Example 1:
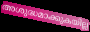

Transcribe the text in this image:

അശുദ്ധമാക്കുകയില്ല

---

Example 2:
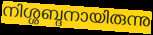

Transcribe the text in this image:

നിശ്ശബ്ദനായിരുന്നു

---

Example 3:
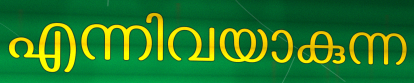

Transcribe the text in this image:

എന്നിവയാകുന്ന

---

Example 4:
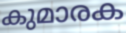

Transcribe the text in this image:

കുമാരക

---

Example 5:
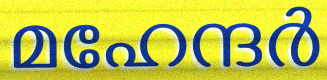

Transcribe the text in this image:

മഹേന്ദർ